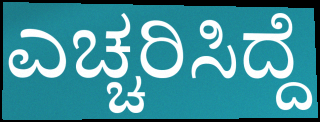
ಎಚ್ಚರಿಸಿದ್ದೆ